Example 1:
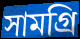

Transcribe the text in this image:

সামগ্রি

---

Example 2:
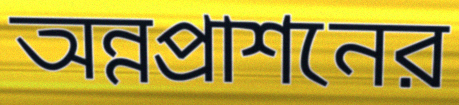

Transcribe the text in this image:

অন্নপ্রাশনের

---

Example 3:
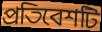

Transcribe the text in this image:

প্রতিবেশটি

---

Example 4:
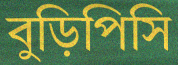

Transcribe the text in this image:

বুড়িপিসি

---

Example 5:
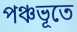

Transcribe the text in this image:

পঞ্চভূতে